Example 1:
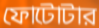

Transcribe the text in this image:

ফোটোটার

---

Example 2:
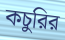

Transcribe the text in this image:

কচুরির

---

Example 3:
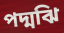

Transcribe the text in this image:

পদ্মঝি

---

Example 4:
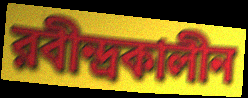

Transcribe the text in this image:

রবীন্দ্রকালীন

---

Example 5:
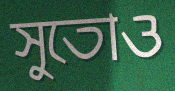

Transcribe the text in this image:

সুতোও